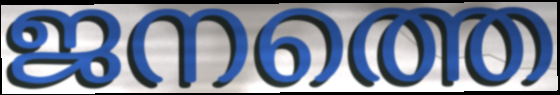
ജനത്തെ